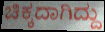
ಚಿಕ್ಕದಾಗಿದ್ದು